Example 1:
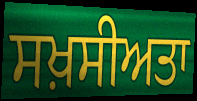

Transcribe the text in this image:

ਸਖ਼ਸੀਅਤਾ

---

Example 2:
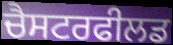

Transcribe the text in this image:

ਚੈਸਟਰਫੀਲਡ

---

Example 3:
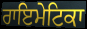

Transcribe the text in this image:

ਰਾਇਮੇਟਿਕਾ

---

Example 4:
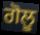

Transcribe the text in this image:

ਗੋਲੂ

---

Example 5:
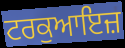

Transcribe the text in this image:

ਟਰਕੁਆਇਜ਼